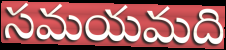
సమయమది